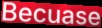
Becuase